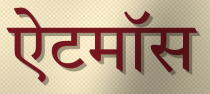
ऐटमॉस